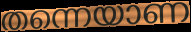
തന്നെയാണ